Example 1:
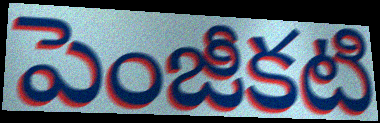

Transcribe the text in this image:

పెంజీకటి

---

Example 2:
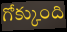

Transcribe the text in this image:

గోక్కుంది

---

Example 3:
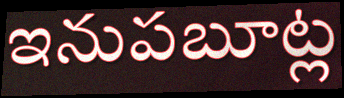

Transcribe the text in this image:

ఇనుపబూట్ల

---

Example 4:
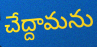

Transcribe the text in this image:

చేద్దామను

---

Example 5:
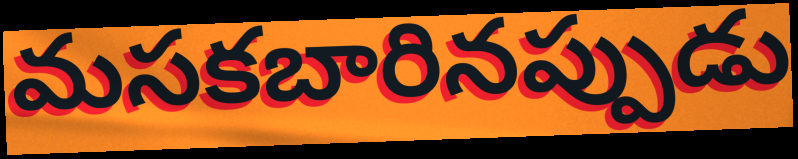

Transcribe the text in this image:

మసకబారినప్పుడు